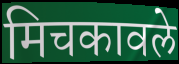
मिचकावले